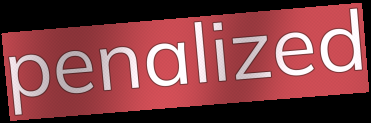
penalized